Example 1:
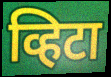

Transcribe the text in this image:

व्हिटा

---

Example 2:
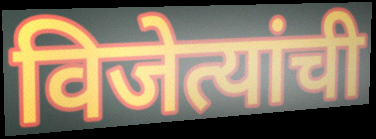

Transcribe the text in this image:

विजेत्यांची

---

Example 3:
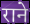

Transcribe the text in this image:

राने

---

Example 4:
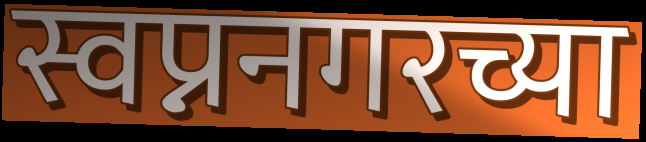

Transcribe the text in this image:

स्वप्ननगरच्या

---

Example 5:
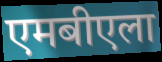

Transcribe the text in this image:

एमबीएला